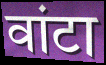
वांटा